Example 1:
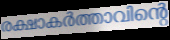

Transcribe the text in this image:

രക്ഷാകർത്താവിന്റെ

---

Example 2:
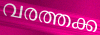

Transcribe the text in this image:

വരത്തക്ക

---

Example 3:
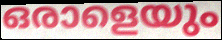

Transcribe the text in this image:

ഒരാളെയും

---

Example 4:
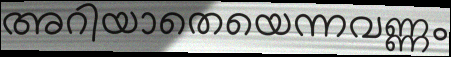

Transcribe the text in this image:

അറിയാതെയെന്നവണ്ണം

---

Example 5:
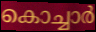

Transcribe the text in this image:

കൊച്ചാർ